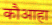
कौआहा